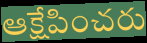
ఆక్షేపించరు